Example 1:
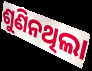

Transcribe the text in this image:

ଶୁଣିନଥିଲା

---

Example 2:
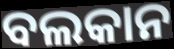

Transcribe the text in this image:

ବଲକାନ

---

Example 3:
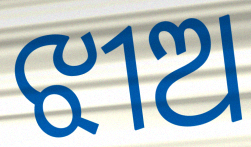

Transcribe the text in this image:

ଝୀଅ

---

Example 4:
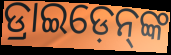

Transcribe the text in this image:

ଡ୍ରାଇଡ଼େନ୍‌ଙ୍କ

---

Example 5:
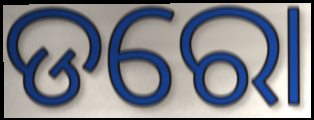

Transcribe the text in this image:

ଡରୋ